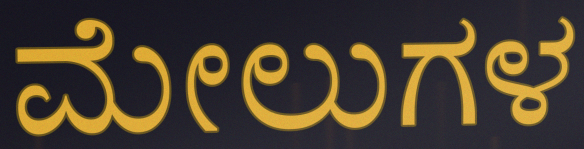
ಮೇಲುಗಳ